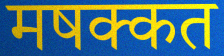
मषक्कत